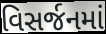
વિસર્જનમાં